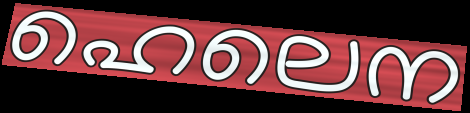
ഹെലെന